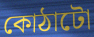
কোঠাটো